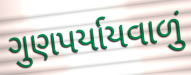
ગુણપર્યાયવાળું